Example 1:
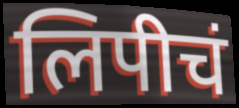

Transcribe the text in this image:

लिपीचं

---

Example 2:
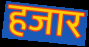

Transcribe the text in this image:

हजार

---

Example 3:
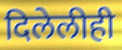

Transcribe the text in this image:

दिलेलीही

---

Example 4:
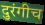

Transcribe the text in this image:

दुरंगीच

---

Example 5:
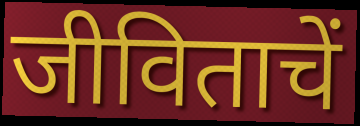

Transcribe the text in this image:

जीविताचें